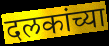
दलकांच्या